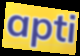
apti